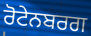
ਰੋਟੇਨਬਰਗ